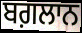
ਬਗ਼ਲਾਨ